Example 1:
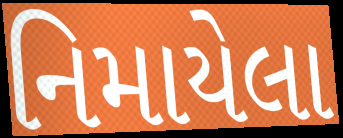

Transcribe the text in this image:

નિમાયેલા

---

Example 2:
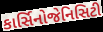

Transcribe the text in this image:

કાર્સિનોજેનિસિટી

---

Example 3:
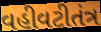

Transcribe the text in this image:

વહીવટીતંત્ર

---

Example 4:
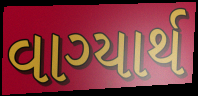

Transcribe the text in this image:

વાગ્યાર્થ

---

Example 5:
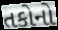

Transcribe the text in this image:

તકોનો